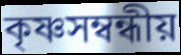
কৃষ্ণসম্বন্ধীয়